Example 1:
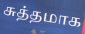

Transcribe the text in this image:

சுத்தமாக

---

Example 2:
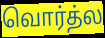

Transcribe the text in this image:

வொர்த்ல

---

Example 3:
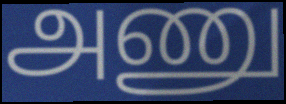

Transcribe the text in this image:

அணு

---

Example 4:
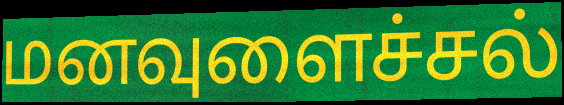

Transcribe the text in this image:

மனவுளைச்சல்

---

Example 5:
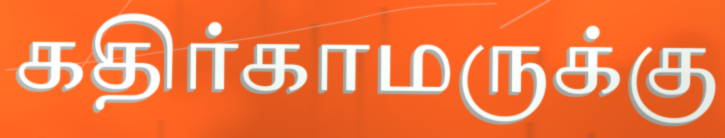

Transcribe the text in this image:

கதிர்காமருக்கு